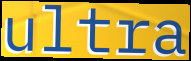
ultra